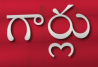
గార్లు